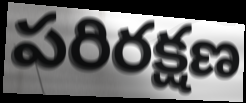
పరిరక్షణ